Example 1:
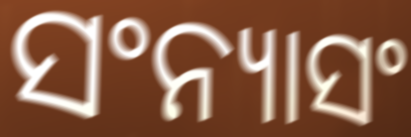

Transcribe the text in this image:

ସଂନ୍ୟାସଂ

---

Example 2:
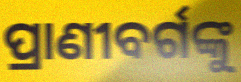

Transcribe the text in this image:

ପ୍ରାଣୀବର୍ଗଙ୍କୁ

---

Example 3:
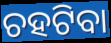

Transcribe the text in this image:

ଚହଟିବା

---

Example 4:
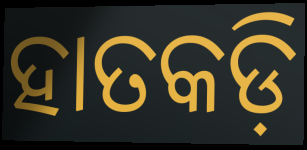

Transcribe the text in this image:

ହାତକଡ଼ି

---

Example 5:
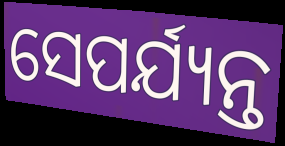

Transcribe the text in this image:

ସେପର୍ଯ୍ୟନ୍ତ